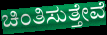
ಚಿಂತಿಸುತ್ತೇವೆ